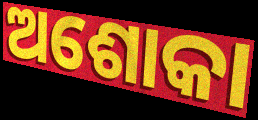
ଅଶୋକା